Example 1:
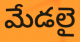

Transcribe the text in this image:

మేడలై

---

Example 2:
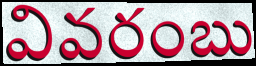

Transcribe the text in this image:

వివరంబు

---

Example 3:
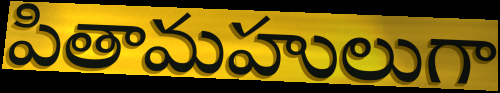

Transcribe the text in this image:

పితామహులుగా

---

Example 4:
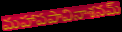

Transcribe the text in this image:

మహాపపావినాశనమ్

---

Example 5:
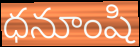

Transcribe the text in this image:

ధనూంషి